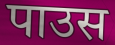
पाउस